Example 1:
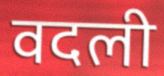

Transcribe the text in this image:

वदली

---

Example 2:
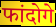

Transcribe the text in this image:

फांदोगे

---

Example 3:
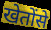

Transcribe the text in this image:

खेतोंसे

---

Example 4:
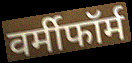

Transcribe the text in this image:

वर्मीफॉर्म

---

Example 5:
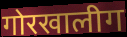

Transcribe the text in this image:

गोरखालीग